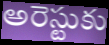
అరెస్టుకు